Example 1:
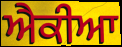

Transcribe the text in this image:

ਐਕੀਆ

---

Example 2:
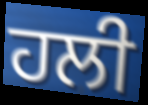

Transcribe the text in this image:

ਹਲੀ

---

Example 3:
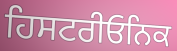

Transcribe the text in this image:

ਹਿਸਟਰੀਓਨਿਕ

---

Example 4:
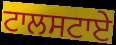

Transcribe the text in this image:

ਟਾਲਸਟਾਏ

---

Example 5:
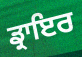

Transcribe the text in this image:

ਡ੍ਰਾਇਰ